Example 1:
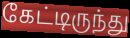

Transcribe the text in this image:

கேட்டிருந்து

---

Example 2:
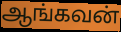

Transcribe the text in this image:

ஆங்கவன்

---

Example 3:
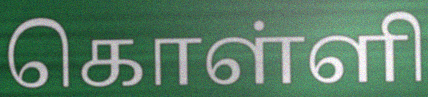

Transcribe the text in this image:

கொள்ளி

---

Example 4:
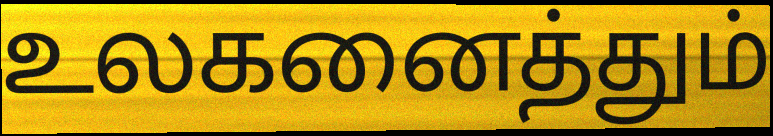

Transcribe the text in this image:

உலகனைத்தும்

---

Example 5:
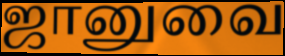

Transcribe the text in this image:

ஜானுவை